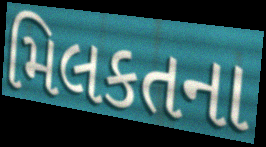
મિલકતના